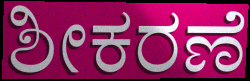
ಶೀಕರಣೆ